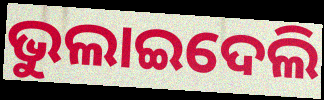
ଭୁଲାଇଦେଲି